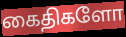
கைதிகளோ